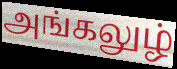
அங்கலுழ்